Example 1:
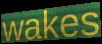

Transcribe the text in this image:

wakes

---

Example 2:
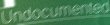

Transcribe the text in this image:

Undocumented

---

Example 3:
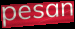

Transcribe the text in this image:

pesan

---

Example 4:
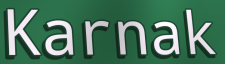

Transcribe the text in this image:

Karnak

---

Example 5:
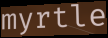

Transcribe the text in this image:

myrtle